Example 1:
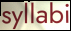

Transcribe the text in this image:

syllabi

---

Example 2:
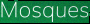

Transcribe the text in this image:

Mosques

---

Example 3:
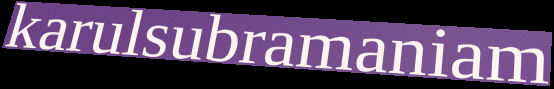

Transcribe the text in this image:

karulsubramaniam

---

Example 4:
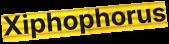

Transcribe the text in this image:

Xiphophorus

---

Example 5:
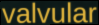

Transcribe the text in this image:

valvular